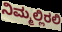
ನಿಮ್ಮಲ್ಲಿರಲಿ